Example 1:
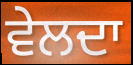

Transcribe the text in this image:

ਵੇਲਦਾ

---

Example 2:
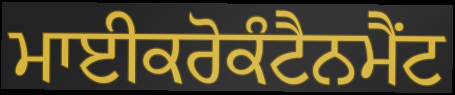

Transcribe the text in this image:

ਮਾਈਕਰੋਕੰਟੈਨਮੈਂਟ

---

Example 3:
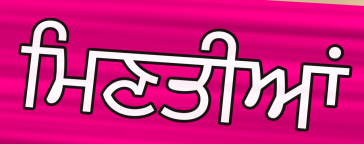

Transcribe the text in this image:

ਮਿਣਤੀਆਂ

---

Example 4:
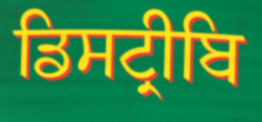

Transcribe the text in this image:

ਡਿਸਟ੍ਰੀਬਿ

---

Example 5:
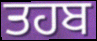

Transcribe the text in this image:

ਤਹਬ